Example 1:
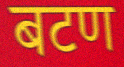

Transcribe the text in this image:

बटण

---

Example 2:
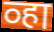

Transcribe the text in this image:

व्हा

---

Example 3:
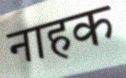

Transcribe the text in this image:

नाहक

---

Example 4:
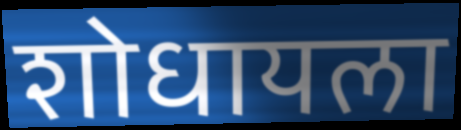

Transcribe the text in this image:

शोधायला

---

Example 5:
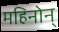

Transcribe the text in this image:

महिनोन्